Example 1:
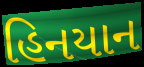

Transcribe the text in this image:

હિનયાન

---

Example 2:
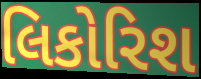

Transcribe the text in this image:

લિકોરિશ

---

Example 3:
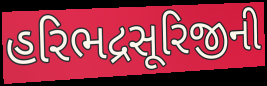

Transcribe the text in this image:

હરિભદ્રસૂરિજીની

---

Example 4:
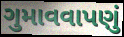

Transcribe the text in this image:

ગુમાવવાપણું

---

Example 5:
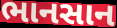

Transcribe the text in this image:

ભાનસાન